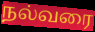
நல்வரை